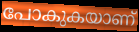
പോകുകയാണ്